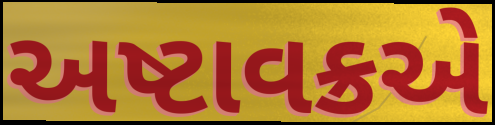
અષ્ટાવક્રએ